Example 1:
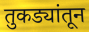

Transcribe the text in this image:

तुकड्यांतून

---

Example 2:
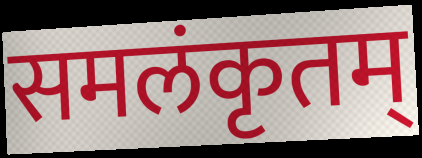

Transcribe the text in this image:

समलंकृतम्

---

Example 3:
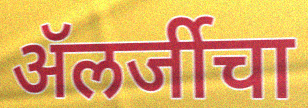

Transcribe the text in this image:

ॲलर्जीचा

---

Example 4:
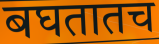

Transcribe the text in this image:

बघतातच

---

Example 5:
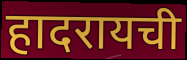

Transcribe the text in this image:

हादरायची